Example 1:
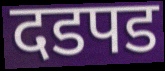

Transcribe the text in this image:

दडपड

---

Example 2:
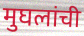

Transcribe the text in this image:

मुघलांची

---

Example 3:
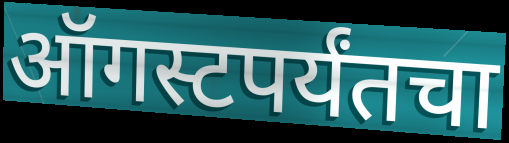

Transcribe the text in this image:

ऑगस्टपर्यंतचा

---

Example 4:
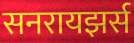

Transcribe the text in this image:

सनरायझर्स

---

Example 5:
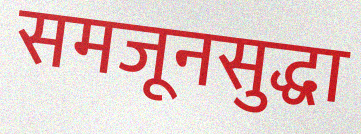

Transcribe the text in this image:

समजूनसुद्धा